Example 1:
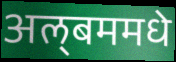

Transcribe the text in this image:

अल्बममधे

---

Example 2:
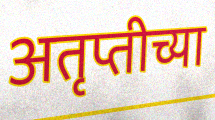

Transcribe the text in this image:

अतृप्तीच्या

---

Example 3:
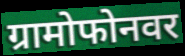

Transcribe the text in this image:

ग्रामोफोनवर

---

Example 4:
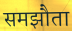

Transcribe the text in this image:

समझौता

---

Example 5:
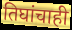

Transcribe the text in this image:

तिघांचाही